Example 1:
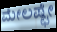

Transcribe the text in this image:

ಮೇಲಷ್ಟೇ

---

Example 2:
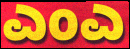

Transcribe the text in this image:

ಎಂಎ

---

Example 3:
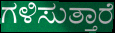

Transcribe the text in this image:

ಗಳಿಸುತ್ತಾರೆ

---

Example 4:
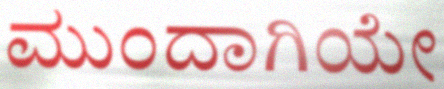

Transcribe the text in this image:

ಮುಂದಾಗಿಯೇ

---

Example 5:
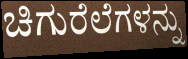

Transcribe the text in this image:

ಚಿಗುರೆಲೆಗಳನ್ನು